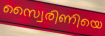
സ്വൈരിണിയെ